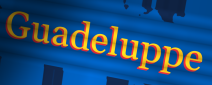
Guadeluppe